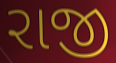
રાજી